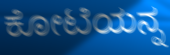
ಕೋಟೆಯನ್ನ